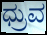
ಧ್ರುವ